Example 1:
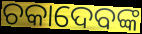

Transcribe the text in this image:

ଚକାଦେବଙ୍କ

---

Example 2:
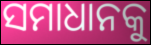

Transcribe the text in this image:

ସମାଧାନକୁ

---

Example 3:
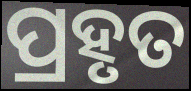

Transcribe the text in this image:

ପ୍ରହୃତ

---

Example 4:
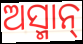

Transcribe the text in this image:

ଅସ୍ମାନ୍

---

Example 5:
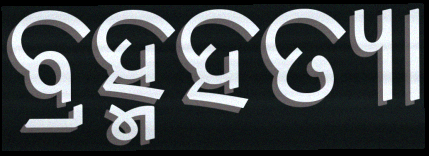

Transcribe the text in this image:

ବ୍ରହ୍ମହତ୍ୟା